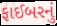
ફાઈબરનું